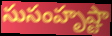
సుసంహృష్టా